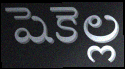
షెకెల్ల